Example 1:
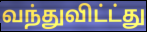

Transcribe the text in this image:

வந்துவிட்ட்து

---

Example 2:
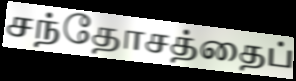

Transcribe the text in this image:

சந்தோசத்தைப்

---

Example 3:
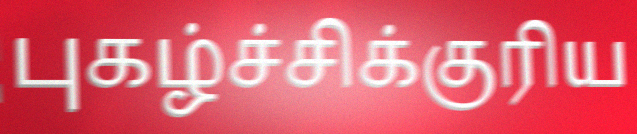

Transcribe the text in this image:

புகழ்ச்சிக்குரிய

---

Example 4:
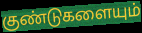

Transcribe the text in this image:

குண்டுகளையும்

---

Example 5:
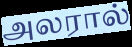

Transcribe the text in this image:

அலரால்